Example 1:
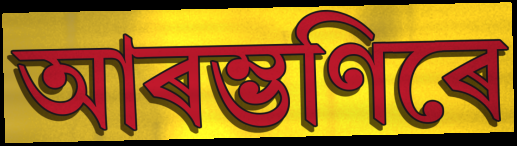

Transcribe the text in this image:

আৰম্ভণিৰে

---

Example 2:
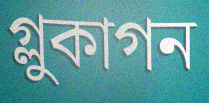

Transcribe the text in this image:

গ্লুকাগন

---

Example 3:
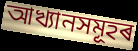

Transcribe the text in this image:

আখ্যানসমূহৰ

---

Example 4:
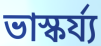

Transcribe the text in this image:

ভাস্কৰ্য্য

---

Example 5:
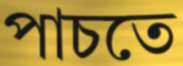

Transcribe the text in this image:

পাচতে